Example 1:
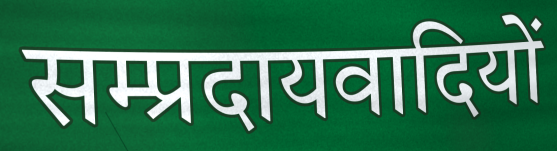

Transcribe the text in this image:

सम्प्रदायवादियों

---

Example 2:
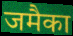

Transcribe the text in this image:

जमैका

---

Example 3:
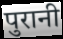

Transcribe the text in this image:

पुरानी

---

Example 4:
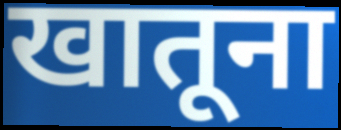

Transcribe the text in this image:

खातूना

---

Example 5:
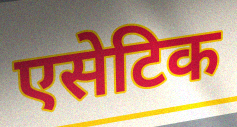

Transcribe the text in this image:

एसेटिक